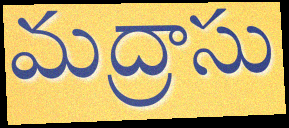
మద్రాసు